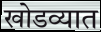
खोडव्यात